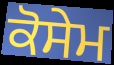
ਕੋਸੇਮ